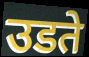
उडते